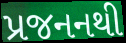
પ્રજનનથી